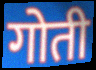
गोती